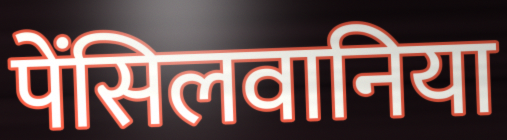
पेंसिलवानिया